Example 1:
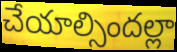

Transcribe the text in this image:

చేయాల్సిందల్లా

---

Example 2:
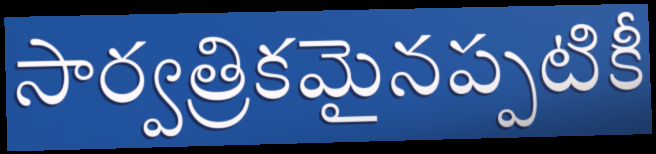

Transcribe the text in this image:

సార్వత్రికమైనప్పటికీ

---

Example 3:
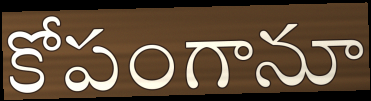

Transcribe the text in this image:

కోపంగానూ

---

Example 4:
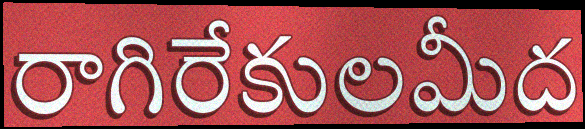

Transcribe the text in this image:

రాగిరేకులమీద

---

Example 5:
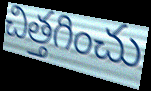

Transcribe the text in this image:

చిత్తగించు